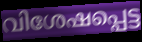
വിശേഷപ്പെട്ട